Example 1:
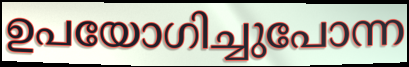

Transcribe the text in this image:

ഉപയോഗിച്ചുപോന്ന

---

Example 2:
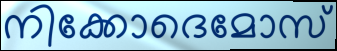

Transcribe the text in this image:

നിക്കോദെമോസ്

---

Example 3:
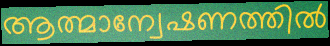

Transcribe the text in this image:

ആത്മാന്വേഷണത്തിൽ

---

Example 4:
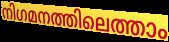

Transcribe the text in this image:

നിഗമനത്തിലെത്താം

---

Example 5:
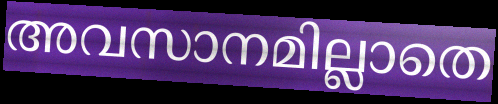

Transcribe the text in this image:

അവസാനമില്ലാതെ